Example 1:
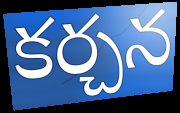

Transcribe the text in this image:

కర్చన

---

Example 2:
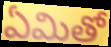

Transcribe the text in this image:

ఏమితో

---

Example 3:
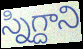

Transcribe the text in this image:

స్నిగ్దాని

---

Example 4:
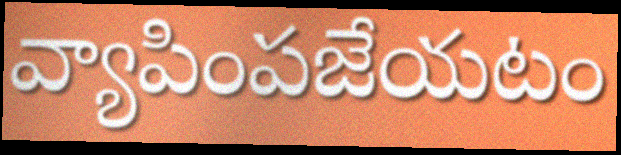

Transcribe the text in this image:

వ్యాపింపజేయటం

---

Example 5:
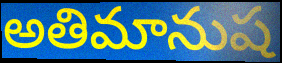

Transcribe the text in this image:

అతిమానుష